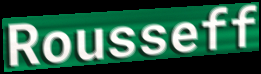
Rousseff